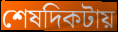
শেষদিকটায়